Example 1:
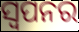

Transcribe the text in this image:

ସ୍ଵପନର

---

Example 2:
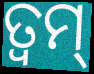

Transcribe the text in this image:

ତ୍ୱମ୍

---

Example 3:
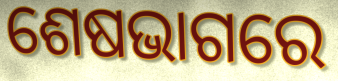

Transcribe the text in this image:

ଶେଷଭାଗରେ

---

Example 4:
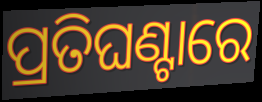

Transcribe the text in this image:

ପ୍ରତିଘଣ୍ଟାରେ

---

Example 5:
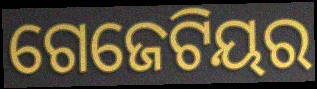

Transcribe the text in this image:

ଗେଜେଟିୟର